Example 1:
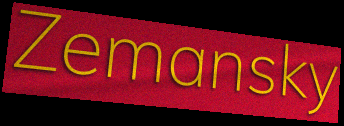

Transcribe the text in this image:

Zemansky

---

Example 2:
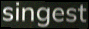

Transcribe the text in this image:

singest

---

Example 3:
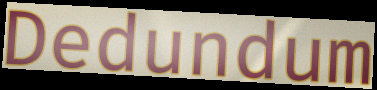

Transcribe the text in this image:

Dedundum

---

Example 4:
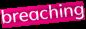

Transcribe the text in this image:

breaching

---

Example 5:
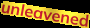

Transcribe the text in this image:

unleavened